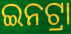
ଇନଟ୍ରା